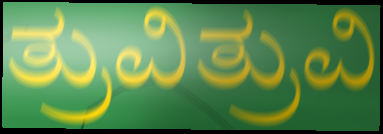
ತ್ರುವಿತ್ರುವಿ